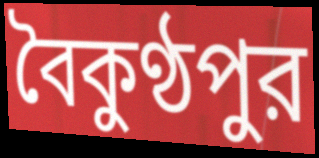
বৈকুণ্ঠপুর